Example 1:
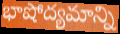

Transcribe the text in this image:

భాషోద్యమాన్ని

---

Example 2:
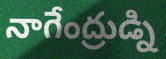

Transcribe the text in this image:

నాగేంద్రుడ్ని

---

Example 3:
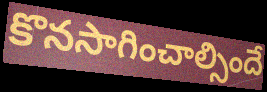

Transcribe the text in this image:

కొనసాగించాల్సిందే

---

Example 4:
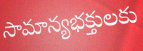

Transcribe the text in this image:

సామాన్యభక్తులకు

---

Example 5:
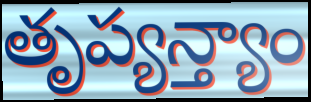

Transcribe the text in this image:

తృప్యన్త్యాం